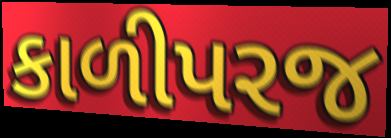
કાળીપરજ